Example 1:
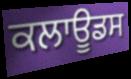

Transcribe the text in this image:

ਕਲਾਊਡਸ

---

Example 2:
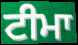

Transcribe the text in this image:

ਟੀਮਾ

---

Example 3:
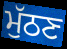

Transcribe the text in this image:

ਮੁੱਠਣ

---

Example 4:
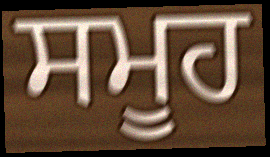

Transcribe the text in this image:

ਸਮੂਹ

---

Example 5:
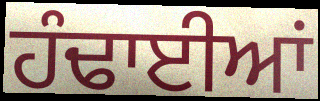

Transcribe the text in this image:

ਹੰਢਾਈਆਂ